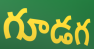
గూడగ